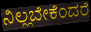
ನಿಲ್ಲಬೇಕೆಂದರೆ